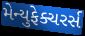
મેન્યુફેક્ચરર્સ